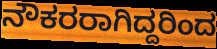
ನೌಕರರಾಗಿದ್ದರಿಂದ